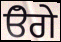
ੳੱਗੇ